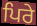
ਪਿਰੇ